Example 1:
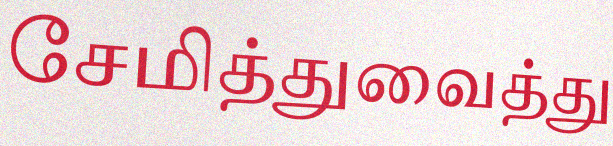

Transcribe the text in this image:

சேமித்துவைத்து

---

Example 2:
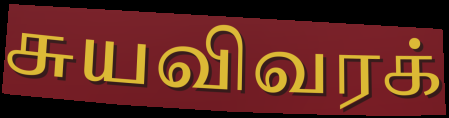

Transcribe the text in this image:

சுயவிவரக்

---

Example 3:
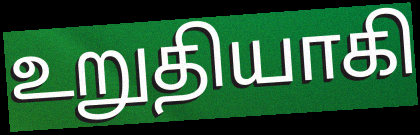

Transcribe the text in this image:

உறுதியாகி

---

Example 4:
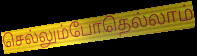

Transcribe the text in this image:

செல்லும்போதெல்லாம்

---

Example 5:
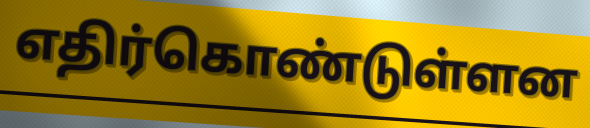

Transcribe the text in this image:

எதிர்கொண்டுள்ளன